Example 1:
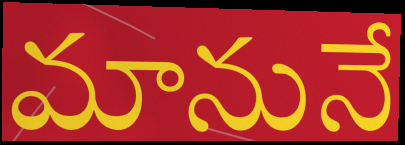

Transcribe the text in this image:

మానునే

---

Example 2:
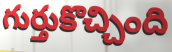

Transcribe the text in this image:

గుర్తుకొచ్చింది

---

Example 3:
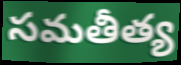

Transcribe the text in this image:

సమతీత్య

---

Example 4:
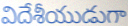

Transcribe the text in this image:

విదేశీయుడుగా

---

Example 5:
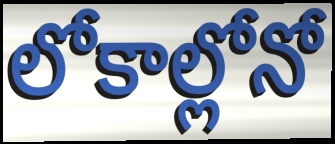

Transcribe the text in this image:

లోకాల్లోనో